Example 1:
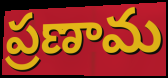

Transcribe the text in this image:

ప్రణామ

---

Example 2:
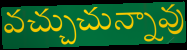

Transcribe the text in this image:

వచ్చుచున్నావు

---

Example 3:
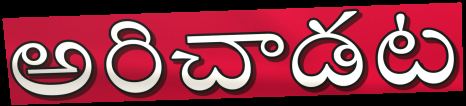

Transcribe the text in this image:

అరిచాడట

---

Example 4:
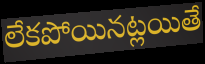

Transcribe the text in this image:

లేకపోయినట్లయితే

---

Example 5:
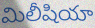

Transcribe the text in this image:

మిలీషియా